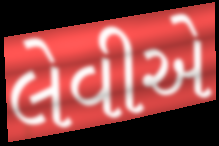
લેવીએ